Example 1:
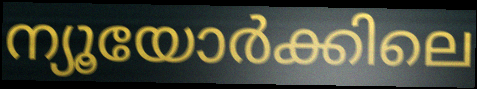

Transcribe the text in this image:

ന്യൂയോർക്കിലെ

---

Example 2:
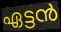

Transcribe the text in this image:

ഏട്ടൻ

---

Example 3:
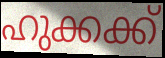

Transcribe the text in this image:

ഹുക്കക്ക്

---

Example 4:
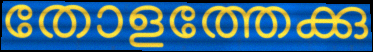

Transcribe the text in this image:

തോളത്തേക്കു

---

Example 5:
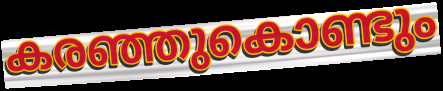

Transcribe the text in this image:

കരഞ്ഞുകൊണ്ടും